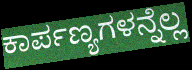
ಕಾರ್ಪಣ್ಯಗಳನ್ನೆಲ್ಲ